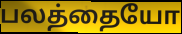
பலத்தையோ